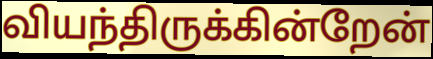
வியந்திருக்கின்றேன்